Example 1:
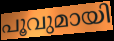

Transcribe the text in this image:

പൂവുമായി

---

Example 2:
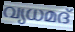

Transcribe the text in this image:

വ്യധമദ്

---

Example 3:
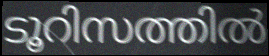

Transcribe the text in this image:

ടൂറിസത്തിൽ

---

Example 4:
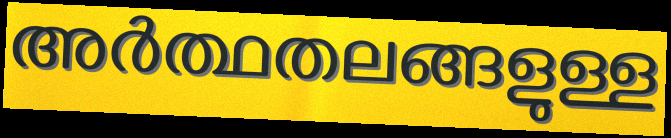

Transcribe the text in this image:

അർത്ഥതലങ്ങളുള്ള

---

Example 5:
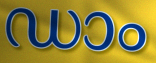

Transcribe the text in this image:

ഡാം